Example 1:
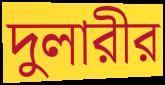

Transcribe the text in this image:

দুলারীর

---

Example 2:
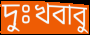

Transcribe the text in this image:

দুঃখবাবু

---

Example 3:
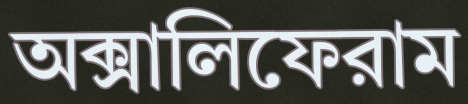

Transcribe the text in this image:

অক্সালিফেরাম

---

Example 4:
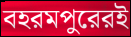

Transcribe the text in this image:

বহরমপুরেরই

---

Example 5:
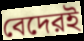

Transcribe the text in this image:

বেদেরই